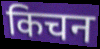
किचन